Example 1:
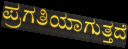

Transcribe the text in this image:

ಪ್ರಗತಿಯಾಗುತ್ತದೆ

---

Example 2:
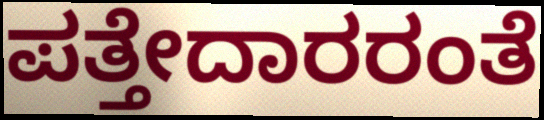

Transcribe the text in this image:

ಪತ್ತೇದಾರರಂತೆ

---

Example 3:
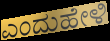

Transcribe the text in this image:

ಎಂದುಹೇಳಿ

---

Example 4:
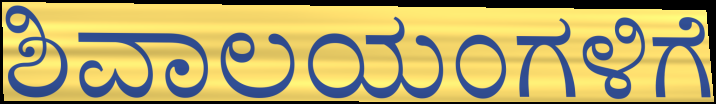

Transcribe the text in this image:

ಶಿವಾಲಯಂಗಳಿಗೆ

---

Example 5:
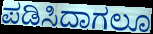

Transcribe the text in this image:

ಪಡಿಸಿದಾಗಲೂ